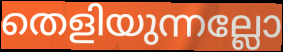
തെളിയുന്നല്ലോ